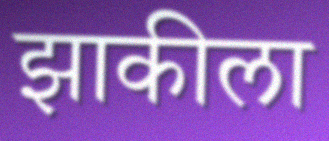
झाकीला